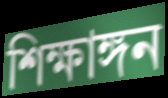
শিক্ষাঙ্গন